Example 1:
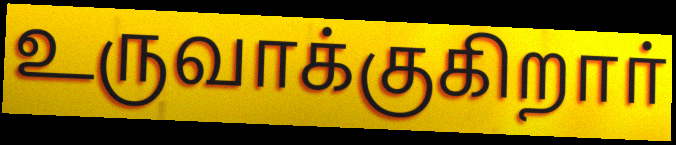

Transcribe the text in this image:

உருவாக்குகிறார்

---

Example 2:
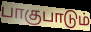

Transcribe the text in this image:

பாகுபாடும்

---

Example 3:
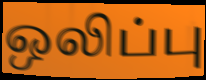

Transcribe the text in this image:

ஒலிப்பு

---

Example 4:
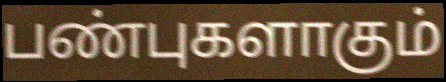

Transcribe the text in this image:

பண்புகளாகும்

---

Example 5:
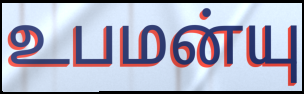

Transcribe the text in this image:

உபமன்யு